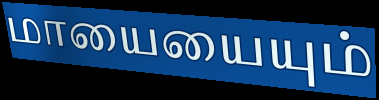
மாயையையும்